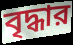
বৃদ্ধার